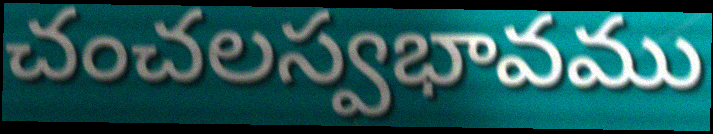
చంచలస్వభావము